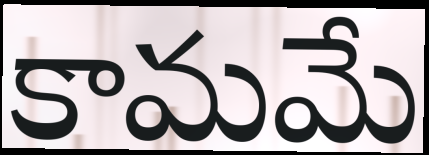
కామమే